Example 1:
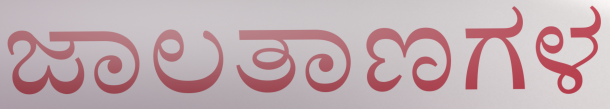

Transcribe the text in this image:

ಜಾಲತಾಣಗಳ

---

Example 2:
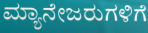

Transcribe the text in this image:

ಮ್ಯಾನೇಜರುಗಳಿಗೆ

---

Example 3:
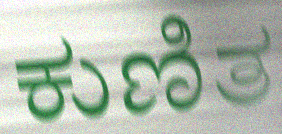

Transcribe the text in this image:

ಕುಣಿತ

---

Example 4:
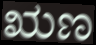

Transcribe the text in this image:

ಋಣ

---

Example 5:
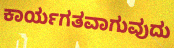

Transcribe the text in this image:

ಕಾರ್ಯಗತವಾಗುವುದು